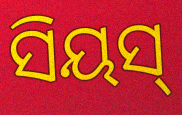
ସିୟସ୍